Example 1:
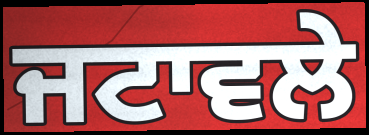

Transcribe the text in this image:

ਜਟਾਵਲੇ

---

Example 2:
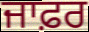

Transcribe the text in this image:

ਜਾਫ਼ਰ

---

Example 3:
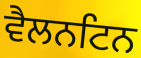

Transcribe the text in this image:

ਵੈਲਨਟਿਨ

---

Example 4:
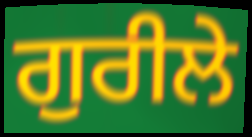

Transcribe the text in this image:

ਗੁਰੀਲੇ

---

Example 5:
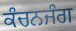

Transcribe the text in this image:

ਕੰਚਨਜੰਗ